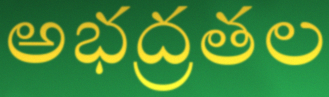
అభద్రతల